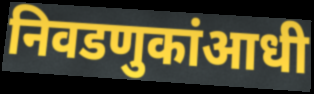
निवडणुकांआधी